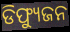
ଡିଫ୍ୟୁଜନ